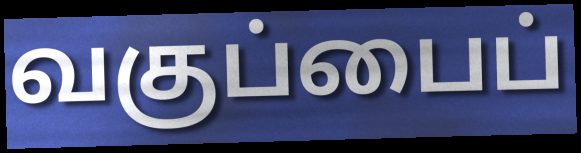
வகுப்பைப்